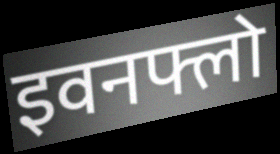
इवनफ्लो